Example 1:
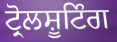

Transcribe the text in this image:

ਟ੍ਰੋਲਸ਼ੂਟਿੰਗ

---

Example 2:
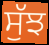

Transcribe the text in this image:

ਸੁੱਝ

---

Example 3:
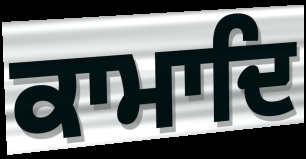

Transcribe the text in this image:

ਕਾਮਾਦਿ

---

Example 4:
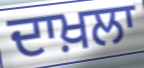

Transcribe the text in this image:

ਦਾਖ਼ਲਾ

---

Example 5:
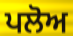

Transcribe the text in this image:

ਪਲੋਅ